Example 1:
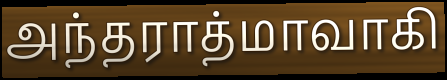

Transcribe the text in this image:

அந்தராத்மாவாகி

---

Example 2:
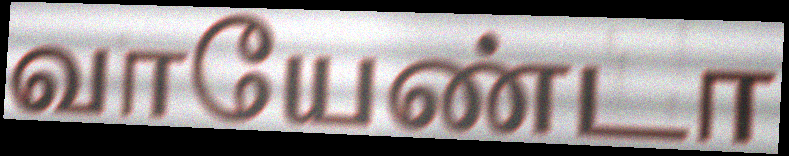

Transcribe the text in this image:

வாயேண்டா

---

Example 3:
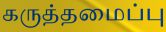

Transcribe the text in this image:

கருத்தமைப்பு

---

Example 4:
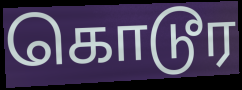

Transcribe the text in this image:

கொடூர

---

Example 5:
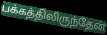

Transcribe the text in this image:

பக்கத்திலிருந்தேன்